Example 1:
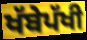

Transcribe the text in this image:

ਖੱਬੇਪੱਖੀ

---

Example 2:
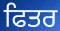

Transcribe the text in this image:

ਫਿਤਰ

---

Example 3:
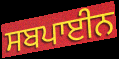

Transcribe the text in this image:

ਸਬਪਾਈਨ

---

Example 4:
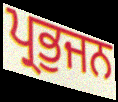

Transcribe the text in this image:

ਪ੍ਰਭੁਜਨ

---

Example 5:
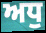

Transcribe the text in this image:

ਅਧੁ